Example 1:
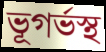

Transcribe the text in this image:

ভূগর্ভস্থ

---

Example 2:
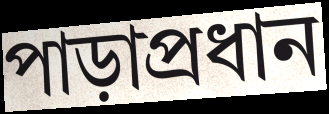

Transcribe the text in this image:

পাড়াপ্রধান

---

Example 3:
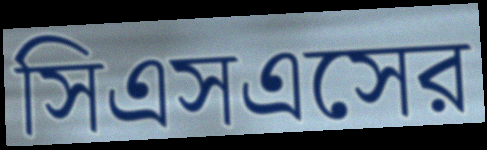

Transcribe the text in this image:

সিএসএসের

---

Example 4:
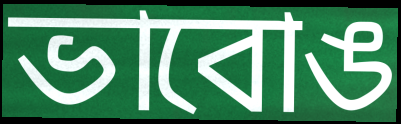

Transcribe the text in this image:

ভাবোঙ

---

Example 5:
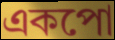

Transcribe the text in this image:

একপো